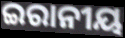
ଇରାନୀୟ